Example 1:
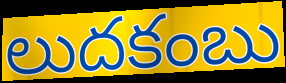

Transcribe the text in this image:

లుదకంబు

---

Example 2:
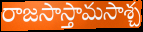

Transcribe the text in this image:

రాజసాస్తామసాశ్చ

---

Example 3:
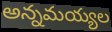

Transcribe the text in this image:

అన్నమయ్యల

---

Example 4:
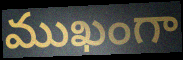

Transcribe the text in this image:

ముఖంగా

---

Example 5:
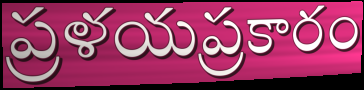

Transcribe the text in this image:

ప్రళయప్రకారం